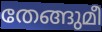
തേങ്ങുമീ